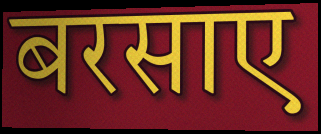
बरसाए